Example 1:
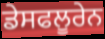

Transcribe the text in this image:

ਡੇਸਫਲੂਰੇਨ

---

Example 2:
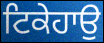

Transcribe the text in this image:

ਟਿਕੇਹਾਉ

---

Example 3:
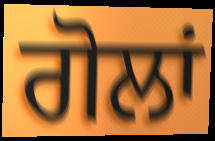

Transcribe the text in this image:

ਗੋਲਾਂ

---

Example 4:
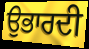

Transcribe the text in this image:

ਉਭਾਰਦੀ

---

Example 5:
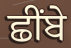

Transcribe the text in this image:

ਛੀਂਬੇ